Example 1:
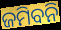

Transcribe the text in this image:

ଜମିବନି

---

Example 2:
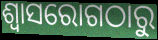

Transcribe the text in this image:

ଶ୍ୱାସରୋଗଠାରୁ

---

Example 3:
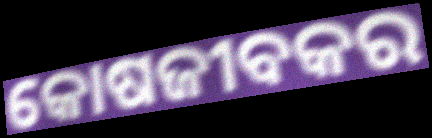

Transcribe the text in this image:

କୋଷଜୀବକର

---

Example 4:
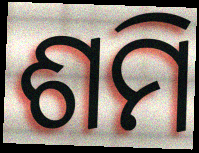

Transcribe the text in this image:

ଶମି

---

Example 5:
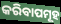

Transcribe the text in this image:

କରିବାପମୂହ